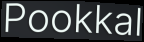
Pookkal